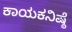
ಕಾಯಕನಿಷ್ಠೆ